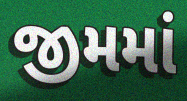
જીમમાં